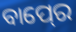
ବାପ୍‍ରେ